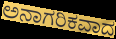
ಅನಾಗರಿಕವಾದ